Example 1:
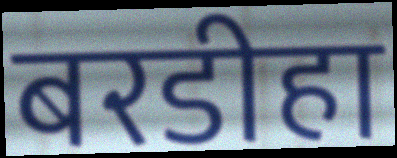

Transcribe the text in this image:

बरडीहा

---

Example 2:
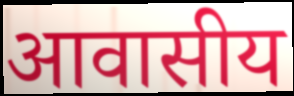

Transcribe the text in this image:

आवासीय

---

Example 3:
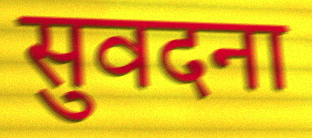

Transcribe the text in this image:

सुवदना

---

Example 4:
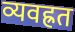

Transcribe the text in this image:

व्यवह्रत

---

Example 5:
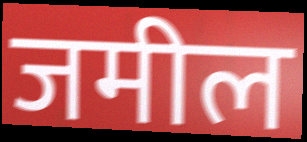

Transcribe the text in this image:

जमील